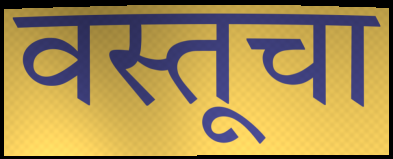
वस्तूचा